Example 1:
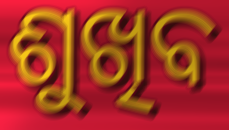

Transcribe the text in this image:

ଶୁଖିବ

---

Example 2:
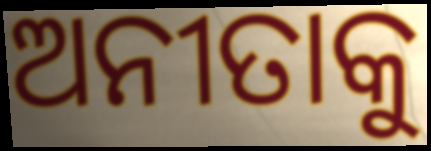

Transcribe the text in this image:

ଅନୀତାକୁ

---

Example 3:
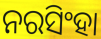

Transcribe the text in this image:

ନରସିଂହା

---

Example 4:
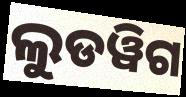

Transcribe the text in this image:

ଲୁଡୱିଗ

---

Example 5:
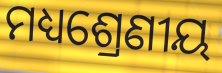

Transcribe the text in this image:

ମଧ୍ୟଶ୍ରେଣୀୟ